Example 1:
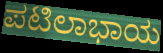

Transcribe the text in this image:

ಪಟಿಲಾಭಾಯ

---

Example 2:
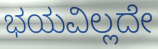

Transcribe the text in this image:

ಭಯವಿಲ್ಲದೇ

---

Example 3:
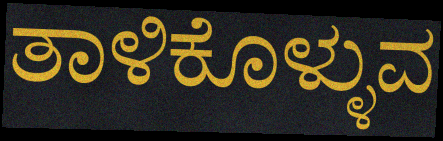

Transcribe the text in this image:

ತಾಳಿಕೊಳ್ಳುವ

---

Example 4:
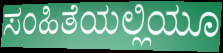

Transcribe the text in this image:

ಸಂಹಿತೆಯಲ್ಲಿಯೂ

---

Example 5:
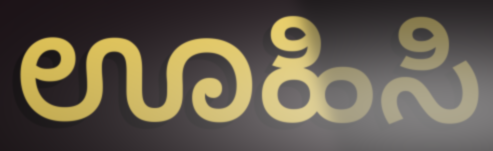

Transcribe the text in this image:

ಊಹಿಸಿ